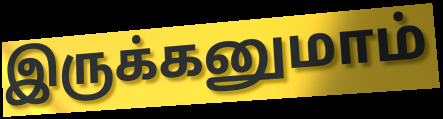
இருக்கனுமாம்